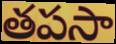
తపసా